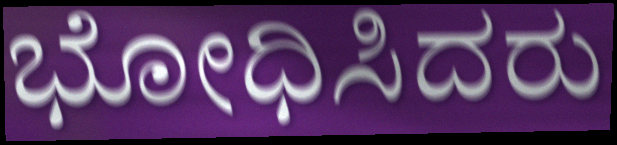
ಭೋಧಿಸಿದರು